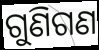
ଗୁଣିଗଣ